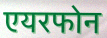
एयरफोन